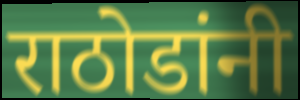
राठोडांनी